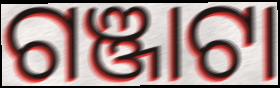
ଗଞ୍ଜାଟା